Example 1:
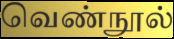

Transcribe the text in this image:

வெண்நூல்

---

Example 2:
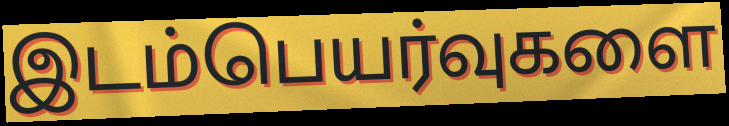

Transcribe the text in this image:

இடம்பெயர்வுகளை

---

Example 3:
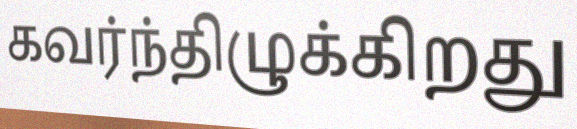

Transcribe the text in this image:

கவர்ந்திழுக்கிறது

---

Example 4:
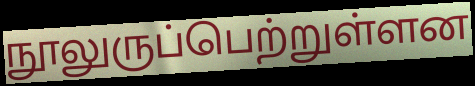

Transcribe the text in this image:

நூலுருப்பெற்றுள்ளன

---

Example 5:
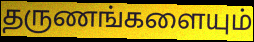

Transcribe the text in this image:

தருணங்களையும்